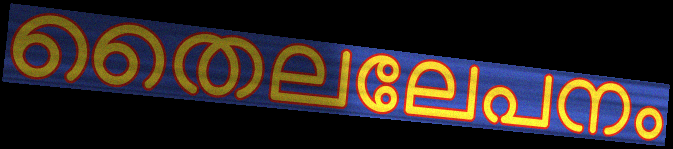
തൈലലേപനം